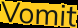
Vomit